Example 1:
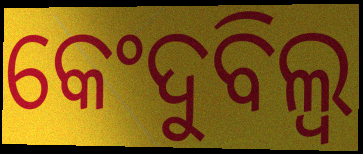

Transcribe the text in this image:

କେଂଦୁବିଲ୍ୱ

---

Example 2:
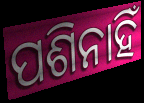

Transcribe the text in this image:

ପଶିନାହିଁ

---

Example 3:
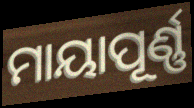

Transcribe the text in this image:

ମାୟାପୂର୍ଣ୍ଣ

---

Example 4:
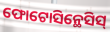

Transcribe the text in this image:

ଫୋଟୋସିନ୍ଥେସିସ୍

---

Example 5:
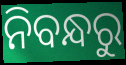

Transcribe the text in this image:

ନିବନ୍ଧରୁ